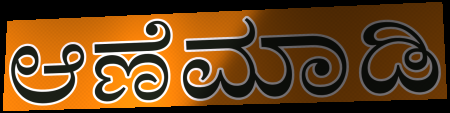
ಆಣೆಮಾಡಿ